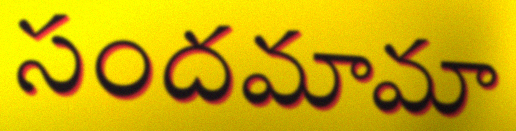
సందమామా